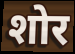
शोर